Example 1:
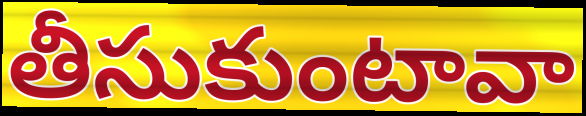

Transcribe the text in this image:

తీసుకుంటావా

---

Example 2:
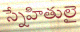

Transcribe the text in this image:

స్నేహితులై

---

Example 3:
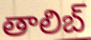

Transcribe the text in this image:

తాలిబ్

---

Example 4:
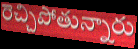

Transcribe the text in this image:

రెచ్చిపోతున్నారు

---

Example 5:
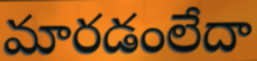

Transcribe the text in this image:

మారడంలేదా